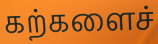
கற்களைச்